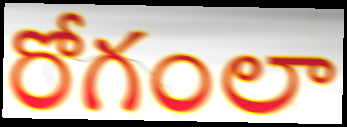
రోగంలా